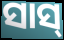
ସାସ୍